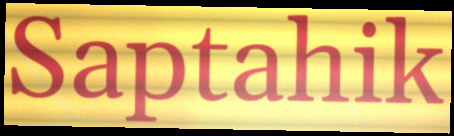
Saptahik